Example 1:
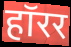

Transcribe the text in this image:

हॉरर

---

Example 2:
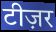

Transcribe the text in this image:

टीज़र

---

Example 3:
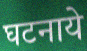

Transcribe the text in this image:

घटनाये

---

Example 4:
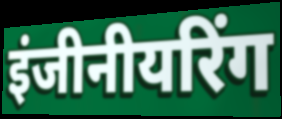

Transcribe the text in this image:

इंजीनीयरिंग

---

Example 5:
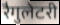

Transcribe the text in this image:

रैगुलेटरी